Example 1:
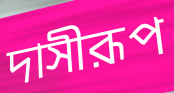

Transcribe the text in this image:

দাসীরূপ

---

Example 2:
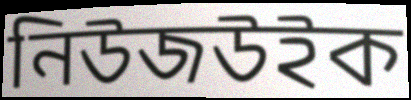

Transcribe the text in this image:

নিউজউইক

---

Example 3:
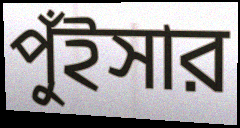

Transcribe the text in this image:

পুঁইসার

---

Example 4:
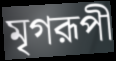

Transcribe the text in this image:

মৃগরূপী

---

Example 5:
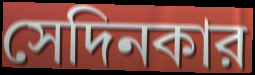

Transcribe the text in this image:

সেদিনকার